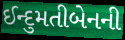
ઈન્દુમતીબેનની